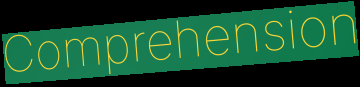
Comprehension